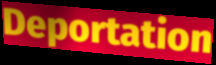
Deportation